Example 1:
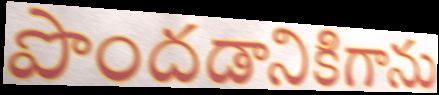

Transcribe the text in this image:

పొందడానికిగాను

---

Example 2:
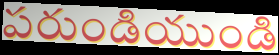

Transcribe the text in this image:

పరుండియుండి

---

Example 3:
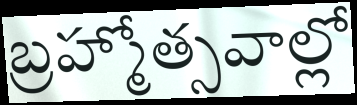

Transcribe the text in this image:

బ్రహ్మోత్సవాల్లో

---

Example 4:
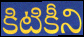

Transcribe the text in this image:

కిటికీని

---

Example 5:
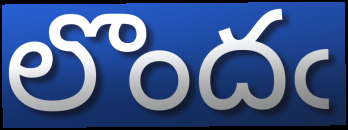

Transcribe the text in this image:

లొందఁ